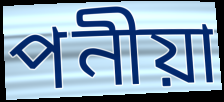
পনীয়া